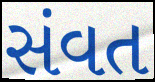
સંવત